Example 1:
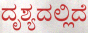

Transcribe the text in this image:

ದೃಶ್ಯದಲ್ಲಿದೆ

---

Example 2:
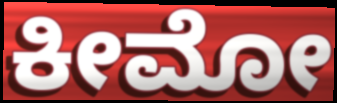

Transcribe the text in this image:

ಕೀಮೋ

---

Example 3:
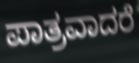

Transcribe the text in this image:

ಪಾತ್ರವಾದರೆ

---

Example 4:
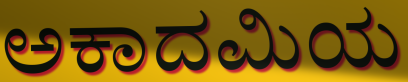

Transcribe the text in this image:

ಅಕಾದಮಿಯ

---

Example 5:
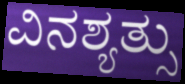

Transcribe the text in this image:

ವಿನಶ್ಯತ್ಸು